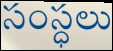
సంస్ధలు